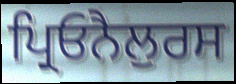
ਪ੍ਰਿਓਨੈਲੁਰਸ